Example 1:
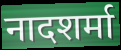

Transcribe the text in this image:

नादशर्मा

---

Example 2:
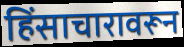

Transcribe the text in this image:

हिंसाचारावरून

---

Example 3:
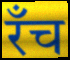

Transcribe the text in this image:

रँच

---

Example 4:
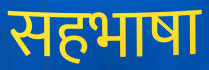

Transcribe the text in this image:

सहभाषा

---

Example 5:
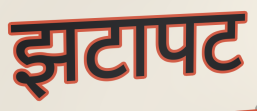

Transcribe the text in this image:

झटापट